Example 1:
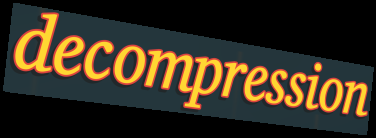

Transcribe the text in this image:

decompression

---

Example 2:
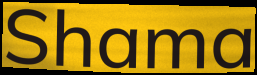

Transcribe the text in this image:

Shama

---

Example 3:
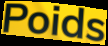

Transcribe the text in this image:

Poids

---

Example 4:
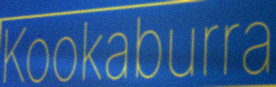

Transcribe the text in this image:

Kookaburra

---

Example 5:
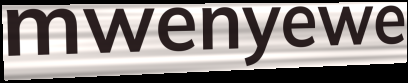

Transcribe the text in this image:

mwenyewe